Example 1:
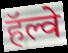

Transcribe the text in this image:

हॅल्वे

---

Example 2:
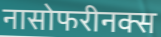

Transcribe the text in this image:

नासोफरीनक्स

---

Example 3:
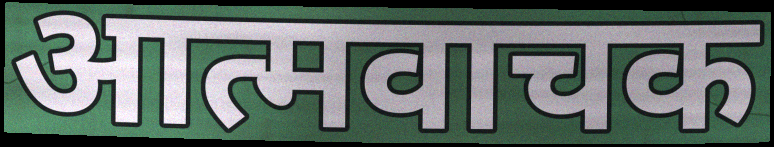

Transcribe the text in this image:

आत्मवाचक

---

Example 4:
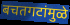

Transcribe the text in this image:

बचतगटांमुळे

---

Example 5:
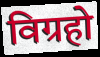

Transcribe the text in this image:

विग्रहो